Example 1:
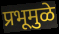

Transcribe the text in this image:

प्रभूमुळे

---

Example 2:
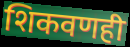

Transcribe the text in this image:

शिकवणही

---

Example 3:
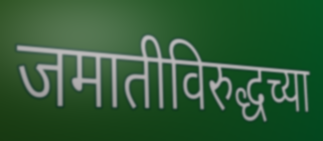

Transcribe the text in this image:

जमातीविरुद्धच्या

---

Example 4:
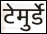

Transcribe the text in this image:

टेमुर्डे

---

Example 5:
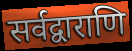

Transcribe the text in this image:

सर्वद्वाराणि